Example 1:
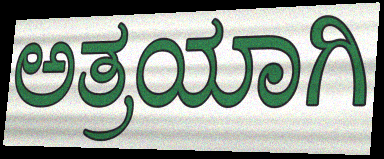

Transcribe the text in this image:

ಅತ್ರಯಾಗಿ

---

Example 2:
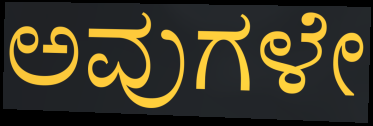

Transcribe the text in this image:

ಅವುಗಳೇ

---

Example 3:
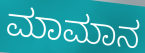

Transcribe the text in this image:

ಮಾಮಾನ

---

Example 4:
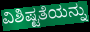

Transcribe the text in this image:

ವಿಶಿಷ್ಟತೆಯನ್ನು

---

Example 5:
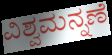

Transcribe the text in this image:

ವಿಶ್ವಮನ್ನಣೆ